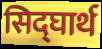
सिद्घार्थ